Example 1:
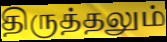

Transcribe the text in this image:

திருத்தலும்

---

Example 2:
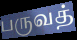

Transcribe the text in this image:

பருவத்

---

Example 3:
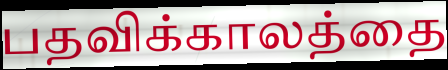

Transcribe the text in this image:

பதவிக்காலத்தை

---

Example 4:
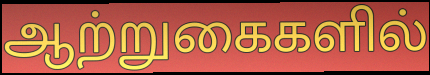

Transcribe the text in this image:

ஆற்றுகைகளில்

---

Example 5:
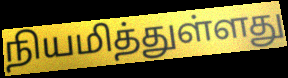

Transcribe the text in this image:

நியமித்துள்ளது